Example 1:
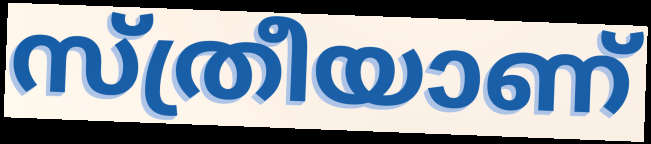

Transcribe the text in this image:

സ്ത്രീയാണ്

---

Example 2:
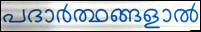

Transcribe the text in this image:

പദാർത്ഥങ്ങളാൽ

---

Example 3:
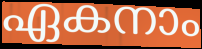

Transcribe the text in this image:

ഏകനാം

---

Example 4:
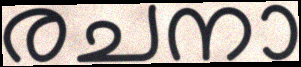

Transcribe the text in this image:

രചനാ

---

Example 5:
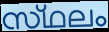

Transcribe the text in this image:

സ്‌ഥലം